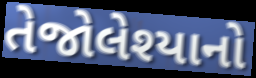
તેજોલેશ્યાનો